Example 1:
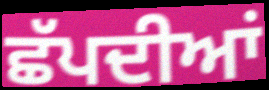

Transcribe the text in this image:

ਛੱਪਦੀਆਂ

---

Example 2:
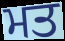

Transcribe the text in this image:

ਮਤ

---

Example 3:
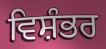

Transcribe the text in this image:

ਵਿਸ਼ੰਭਰ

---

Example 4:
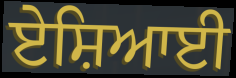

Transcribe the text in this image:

ਏਸ਼ਿਆਈ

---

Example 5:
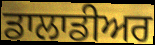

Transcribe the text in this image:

ਡਾਲਾਡੀਅਰ